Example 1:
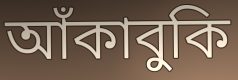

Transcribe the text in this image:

আঁকাবুকি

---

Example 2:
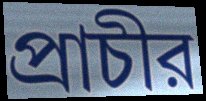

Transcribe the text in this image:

প্রাচীর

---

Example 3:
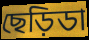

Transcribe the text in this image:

ছেড়িডা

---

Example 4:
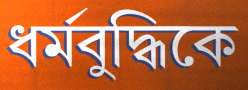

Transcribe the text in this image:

ধর্মবুদ্ধিকে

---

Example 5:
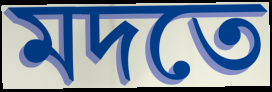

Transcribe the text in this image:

মদতে